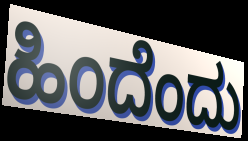
ಹಿಂದೆಂದು